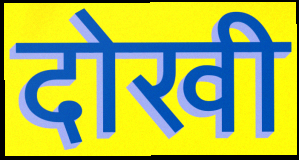
दोखी